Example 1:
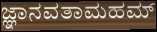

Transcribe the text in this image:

ಜ್ಞಾನವತಾಮಹಮ್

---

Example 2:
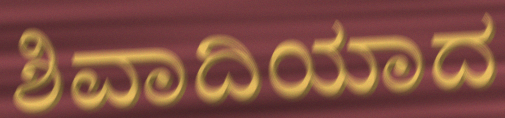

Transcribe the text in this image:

ಶಿವಾದಿಯಾದ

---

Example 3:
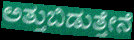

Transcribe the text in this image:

ಅತ್ತುಬಿಡುತ್ತೇನೆ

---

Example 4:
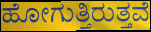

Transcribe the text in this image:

ಹೋಗುತ್ತಿರುತ್ತವೆ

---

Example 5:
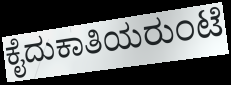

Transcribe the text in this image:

ಕೈದುಕಾತಿಯರುಂಟೆ